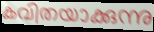
കവിതയാക്കുന്നു